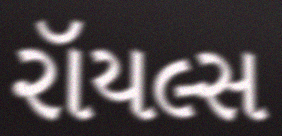
રૉયલ્સ